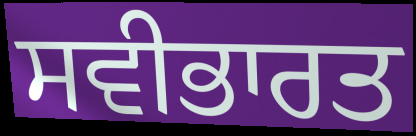
ਸਵੀਭਾਰਤ